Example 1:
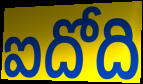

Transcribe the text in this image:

ఐదోది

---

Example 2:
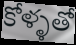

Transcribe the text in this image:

కోళ్ళతో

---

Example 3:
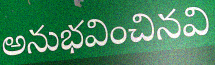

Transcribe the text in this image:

అనుభవించినవి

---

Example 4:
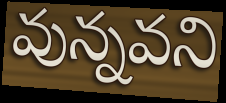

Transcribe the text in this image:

వున్నవని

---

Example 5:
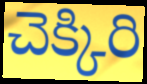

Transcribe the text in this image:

చెక్కిరి